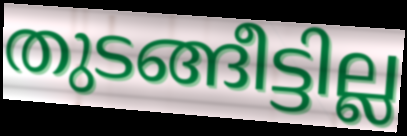
തുടങ്ങീട്ടില്ല